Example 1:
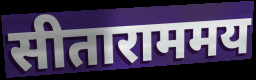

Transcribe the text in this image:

सीताराममय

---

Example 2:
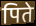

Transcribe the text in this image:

पिते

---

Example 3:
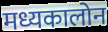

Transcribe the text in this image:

मध्यकालोन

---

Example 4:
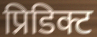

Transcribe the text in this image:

प्रिडिक्ट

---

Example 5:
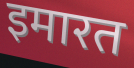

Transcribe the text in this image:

इमारत